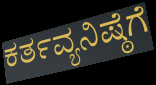
ಕರ್ತವ್ಯನಿಷ್ಠೆಗೆ